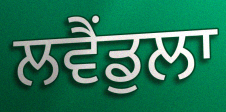
ਲਵੈਂਡੁਲਾ